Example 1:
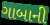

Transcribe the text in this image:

ગાબાની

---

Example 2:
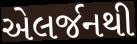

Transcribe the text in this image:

એલર્જનથી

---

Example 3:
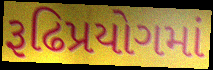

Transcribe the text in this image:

રૂઢિપ્રયોગમાં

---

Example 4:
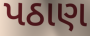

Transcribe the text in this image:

પઠાણ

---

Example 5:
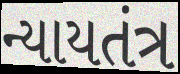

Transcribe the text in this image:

ન્યાયતંત્ર